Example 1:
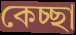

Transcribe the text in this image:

কেচ্ছা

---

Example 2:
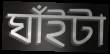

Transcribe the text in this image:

ঘাঁইটা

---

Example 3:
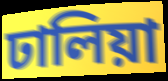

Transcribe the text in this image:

ঢালিয়া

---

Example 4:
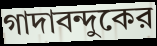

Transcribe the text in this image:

গাদাবন্দুকের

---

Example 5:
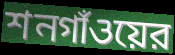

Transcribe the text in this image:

শনগাঁওয়ের